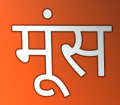
मूंस